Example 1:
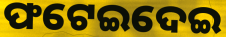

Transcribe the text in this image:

ଫଟେଇଦେଇ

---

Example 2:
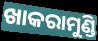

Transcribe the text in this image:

ଖାକରାମୁଣ୍ଡି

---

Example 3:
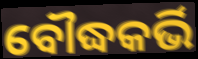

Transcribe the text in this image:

ବୌଦ୍ଧକର୍ଭି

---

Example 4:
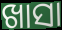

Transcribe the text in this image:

ଖାସା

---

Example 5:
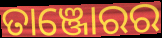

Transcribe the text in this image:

ତାଞ୍ଜୋରର